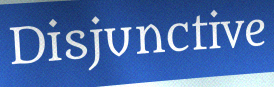
Disjunctive